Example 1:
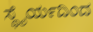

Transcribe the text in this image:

ಸ್ಥೈರ್ಯದಿಂದ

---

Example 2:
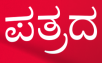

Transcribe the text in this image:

ಪತ್ರದ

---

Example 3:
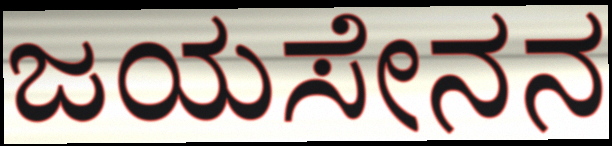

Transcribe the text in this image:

ಜಯಸೇನನ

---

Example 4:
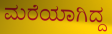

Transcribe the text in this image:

ಮರೆಯಾಗಿದ್ದ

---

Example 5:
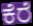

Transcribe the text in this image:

ಕೆರೆ